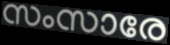
സംസാരേ